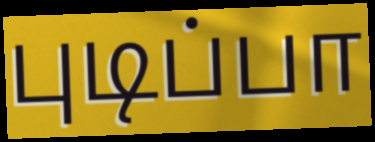
புடிப்பா